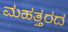
ಮಹತ್ತರದ